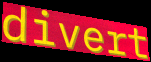
divert